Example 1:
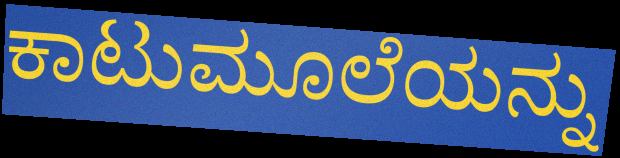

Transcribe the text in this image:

ಕಾಟುಮೂಲೆಯನ್ನು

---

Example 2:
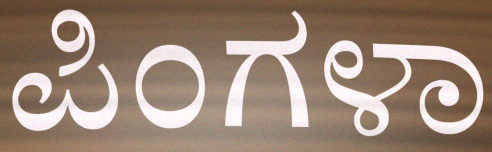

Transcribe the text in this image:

ಪಿಂಗಳಾ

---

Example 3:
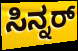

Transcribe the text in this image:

ಸಿನ್ನರ್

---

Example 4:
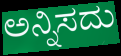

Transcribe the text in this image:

ಅನ್ನಿಸದು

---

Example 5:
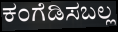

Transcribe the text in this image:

ಕಂಗೆಡಿಸಬಲ್ಲ